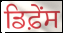
ਡਿਫ਼ੇੰਸ